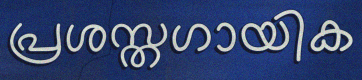
പ്രശസ്തഗായിക